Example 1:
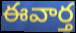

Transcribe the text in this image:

ఈవార్త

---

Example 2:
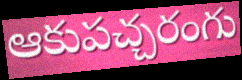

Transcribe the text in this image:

ఆకుపచ్చరంగు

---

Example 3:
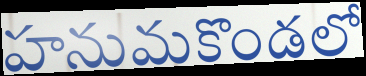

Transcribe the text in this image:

హనుమకొండలో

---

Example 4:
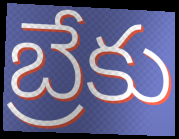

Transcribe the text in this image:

బ్రేకు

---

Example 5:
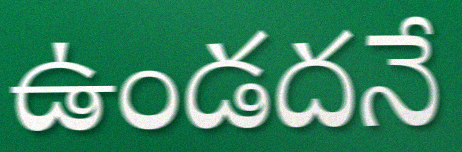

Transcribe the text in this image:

ఉండదనే